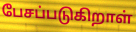
பேசப்படுகிறாள்